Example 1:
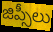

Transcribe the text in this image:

జిప్సీలు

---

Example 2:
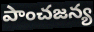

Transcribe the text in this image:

పాంచజన్య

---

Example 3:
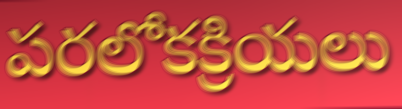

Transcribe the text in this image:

పరలోకక్రియలు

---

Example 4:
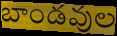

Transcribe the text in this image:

బాండవుల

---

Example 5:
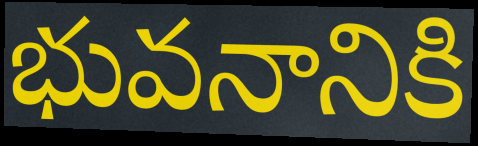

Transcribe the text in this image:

భువనానికి